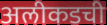
अलीकडची